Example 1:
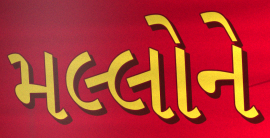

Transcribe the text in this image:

મલ્લોને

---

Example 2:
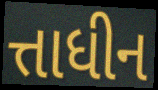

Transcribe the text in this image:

ત્તાધીન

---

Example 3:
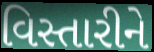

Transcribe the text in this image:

વિસ્તારીને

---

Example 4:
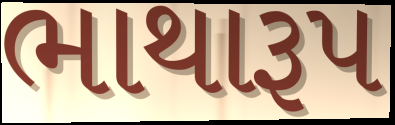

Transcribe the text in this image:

ભાથારૂપ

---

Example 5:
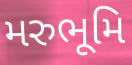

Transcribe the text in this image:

મરુભૂમિ